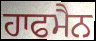
ਹਾਫਮੈਨ